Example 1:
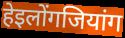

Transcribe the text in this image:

हेइलोंगजियांग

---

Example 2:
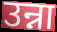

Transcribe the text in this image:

उन्ना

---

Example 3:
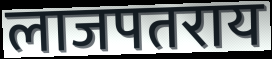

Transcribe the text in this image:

लाजपतराय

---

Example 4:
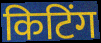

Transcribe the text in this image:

किटिंग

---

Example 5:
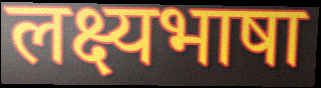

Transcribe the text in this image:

लक्ष्यभाषा